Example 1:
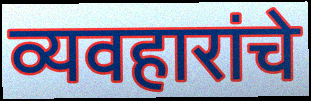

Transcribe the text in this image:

व्यवहारांचे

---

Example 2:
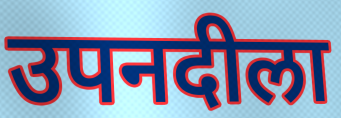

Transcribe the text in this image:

उपनदीला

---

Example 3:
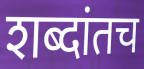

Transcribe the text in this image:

शब्दांतच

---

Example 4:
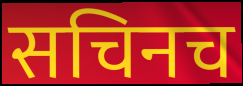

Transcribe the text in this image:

सचिनच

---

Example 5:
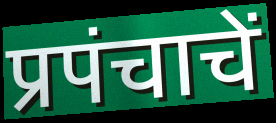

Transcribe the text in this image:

प्रपंचाचें